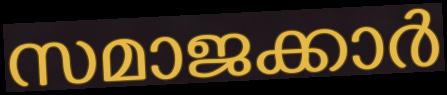
സമാജക്കാർ